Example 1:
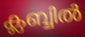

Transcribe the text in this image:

ക്ലബ്ബിൽ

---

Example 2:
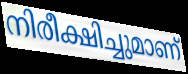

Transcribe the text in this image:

നിരീക്ഷിച്ചുമാണ്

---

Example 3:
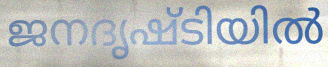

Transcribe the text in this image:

ജനദൃഷ്ടിയിൽ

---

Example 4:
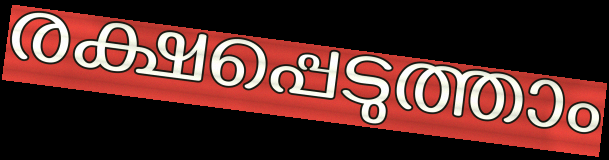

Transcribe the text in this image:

രക്ഷപ്പെടുത്താം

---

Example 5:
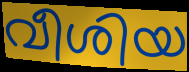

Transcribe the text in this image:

വീശിയ